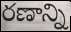
రణాన్ని